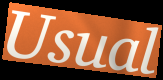
Usual